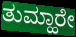
ತುಮ್ಹಾರೇ